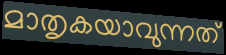
മാതൃകയാവുന്നത്